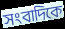
সংবাদিকে